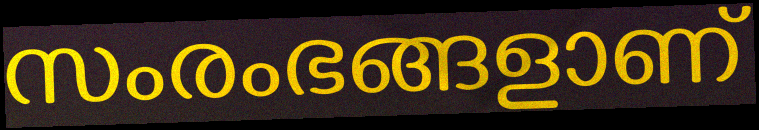
സംരംഭങ്ങളാണ്